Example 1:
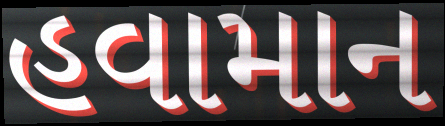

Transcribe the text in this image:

હવામાન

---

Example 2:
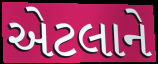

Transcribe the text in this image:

એટલાને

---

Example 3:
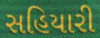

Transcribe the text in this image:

સહિયારી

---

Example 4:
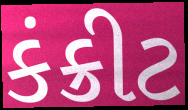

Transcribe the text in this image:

કંક્રીટ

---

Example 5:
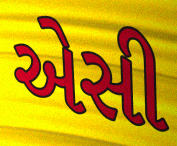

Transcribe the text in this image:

એસી